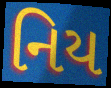
નિય